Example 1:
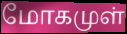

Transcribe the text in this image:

மோகமுள்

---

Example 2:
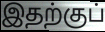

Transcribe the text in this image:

இதற்குப்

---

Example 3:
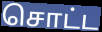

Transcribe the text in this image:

சொட்ட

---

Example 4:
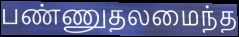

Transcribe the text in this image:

பண்ணுதலமைந்த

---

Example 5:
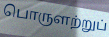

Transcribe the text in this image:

பொருளற்றுப்